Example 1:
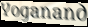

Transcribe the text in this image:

Yoganand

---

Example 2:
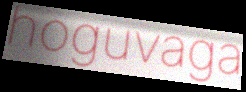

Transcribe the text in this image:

hoguvaga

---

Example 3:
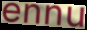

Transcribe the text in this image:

ennu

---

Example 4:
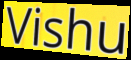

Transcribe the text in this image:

Vishu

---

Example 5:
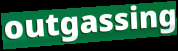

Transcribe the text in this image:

outgassing